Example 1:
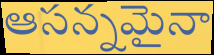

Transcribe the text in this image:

ఆసన్నమైనా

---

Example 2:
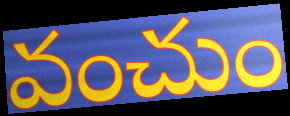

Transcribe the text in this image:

వంచుం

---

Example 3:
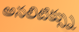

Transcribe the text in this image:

అనలిటిక్స్ను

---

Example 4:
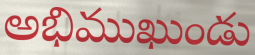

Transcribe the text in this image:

అభిముఖుండు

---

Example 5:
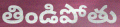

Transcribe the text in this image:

తిండిపోతు